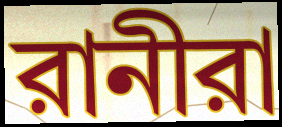
রানীরা